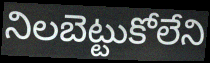
నిలబెట్టుకోలేని